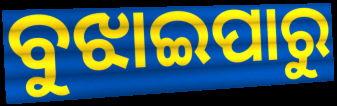
ବୁଝାଇପାରୁ